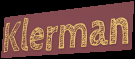
Klerman